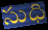
సుధి